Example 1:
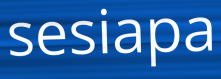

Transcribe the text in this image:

sesiapa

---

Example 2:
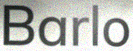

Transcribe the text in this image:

Barlo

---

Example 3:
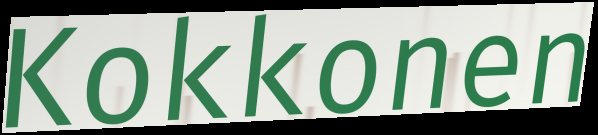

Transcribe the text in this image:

Kokkonen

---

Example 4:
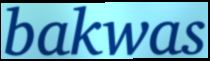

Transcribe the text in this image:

bakwas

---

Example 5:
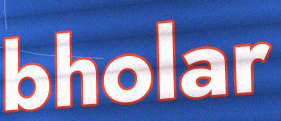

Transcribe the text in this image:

bholar